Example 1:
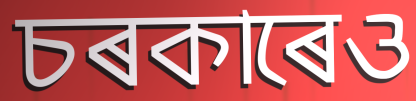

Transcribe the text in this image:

চৰকাৰেও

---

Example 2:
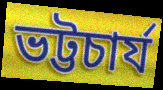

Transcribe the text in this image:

ভট্টচাৰ্য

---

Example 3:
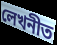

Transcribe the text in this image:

লেখনীত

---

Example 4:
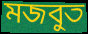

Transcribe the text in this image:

মজবুত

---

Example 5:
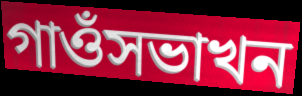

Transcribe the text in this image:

গাওঁসভাখন